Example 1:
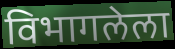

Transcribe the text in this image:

विभागलेला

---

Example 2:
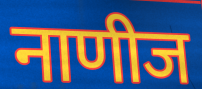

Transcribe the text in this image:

नाणीज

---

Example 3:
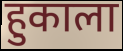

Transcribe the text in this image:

हुकाला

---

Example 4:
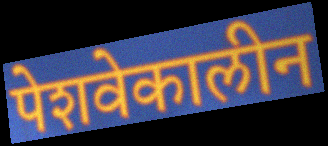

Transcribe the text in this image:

पेशवेकालीन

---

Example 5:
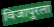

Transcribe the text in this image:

विजापुरला